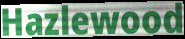
Hazlewood